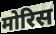
मोरिस